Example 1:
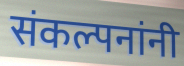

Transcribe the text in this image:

संकल्पनांनी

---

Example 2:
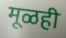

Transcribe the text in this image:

मूळही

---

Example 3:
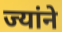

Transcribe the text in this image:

ज्यांने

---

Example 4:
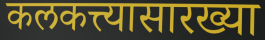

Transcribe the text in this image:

कलकत्त्यासारख्या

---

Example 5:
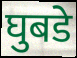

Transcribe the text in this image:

घुबडे